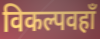
विकल्पवहाँ